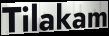
Tilakam